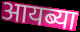
आयब्या